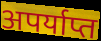
अपर्याप्त